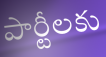
పార్టీలకు